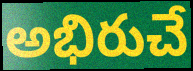
అభిరుచే